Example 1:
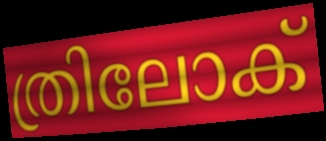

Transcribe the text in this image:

ത്രിലോക്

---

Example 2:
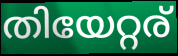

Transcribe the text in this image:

തിയേറ്റര്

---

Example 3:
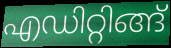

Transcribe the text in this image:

എഡിറ്റിങ്ങ്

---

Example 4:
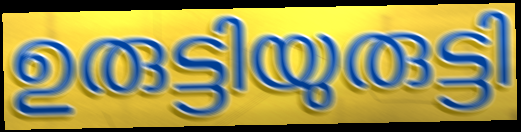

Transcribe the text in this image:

ഉരുട്ടിയുരുട്ടി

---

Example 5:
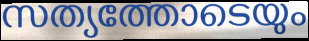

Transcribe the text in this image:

സത്യത്തോടെയും